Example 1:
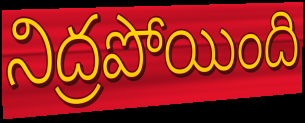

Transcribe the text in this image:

నిద్రపోయింది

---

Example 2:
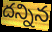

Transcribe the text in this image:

దన్నిన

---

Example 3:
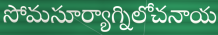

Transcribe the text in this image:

సోమసూర్యాగ్నిలోచనాయ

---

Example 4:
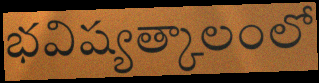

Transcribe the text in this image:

భవిష్యత్కాలంలో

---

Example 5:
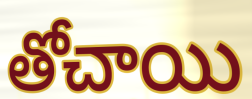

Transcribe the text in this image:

తోచాయి